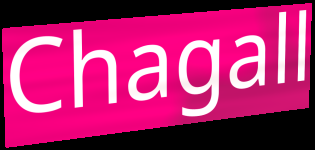
Chagall